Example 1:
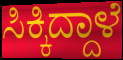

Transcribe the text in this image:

ಸಿಕ್ಕಿದ್ದಾಳೆ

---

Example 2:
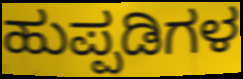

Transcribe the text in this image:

ಹುಪ್ಪಡಿಗಳ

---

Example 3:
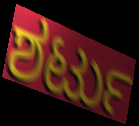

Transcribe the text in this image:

ಶರ್ಟು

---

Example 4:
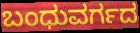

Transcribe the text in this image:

ಬಂಧುವರ್ಗದ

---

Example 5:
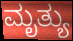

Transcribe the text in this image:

ಮೃತ್ಯು